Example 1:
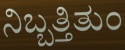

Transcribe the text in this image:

ನಿಬ್ಬತ್ತಿತುಂ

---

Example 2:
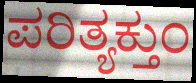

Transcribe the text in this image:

ಪರಿತ್ಯಕ್ತುಂ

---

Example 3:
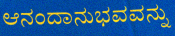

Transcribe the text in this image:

ಆನಂದಾನುಭವವನ್ನು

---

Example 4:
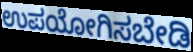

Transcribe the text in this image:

ಉಪಯೋಗಿಸಬೇಡಿ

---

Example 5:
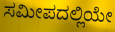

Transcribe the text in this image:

ಸಮೀಪದಲ್ಲಿಯೇ